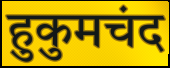
हुकुमचंद